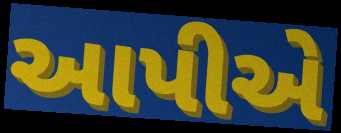
આપીએ